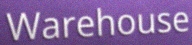
Warehouse